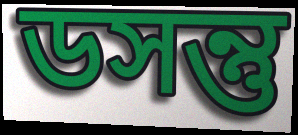
ডসন্তু